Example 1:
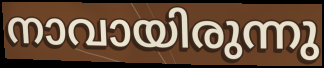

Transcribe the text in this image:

നാവായിരുന്നു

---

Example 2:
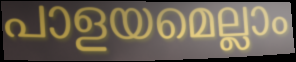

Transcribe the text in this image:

പാളയമെല്ലാം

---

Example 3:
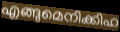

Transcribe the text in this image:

എങ്ങുമെനിക്കിഹ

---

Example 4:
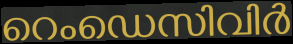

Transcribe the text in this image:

റെംഡെസിവിർ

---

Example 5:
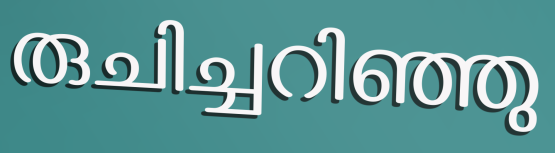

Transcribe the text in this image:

രുചിച്ചറിഞ്ഞു